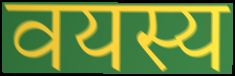
वयस्य